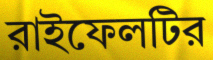
রাইফেলটির